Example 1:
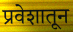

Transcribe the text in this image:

प्रवेशातून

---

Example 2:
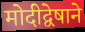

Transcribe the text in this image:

मोदीद्वेषाने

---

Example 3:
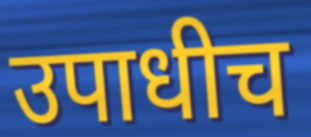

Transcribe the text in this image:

उपाधीच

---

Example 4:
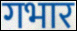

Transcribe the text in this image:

गभार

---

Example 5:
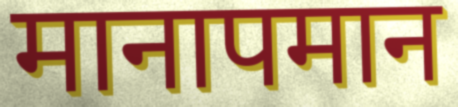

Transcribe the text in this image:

मानापमान